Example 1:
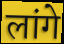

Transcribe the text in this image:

लांगे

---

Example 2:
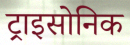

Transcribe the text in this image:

ट्राइसोनिक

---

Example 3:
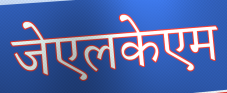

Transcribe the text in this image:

जेएलकेएम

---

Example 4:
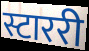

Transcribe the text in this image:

स्टाररी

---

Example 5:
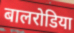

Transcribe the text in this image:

बालरोडिया